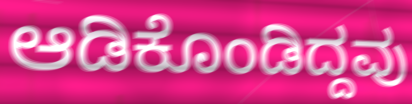
ಆಡಿಕೊಂಡಿದ್ದವು